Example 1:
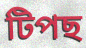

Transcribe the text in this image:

টিপছ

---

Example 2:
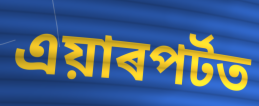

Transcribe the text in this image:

এয়াৰপৰ্টত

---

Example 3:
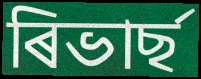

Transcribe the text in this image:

ৰিভাৰ্ছ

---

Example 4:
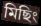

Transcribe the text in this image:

মিছিং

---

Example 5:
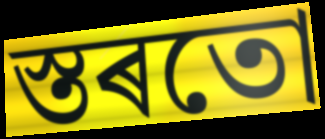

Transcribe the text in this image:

স্তৰতো